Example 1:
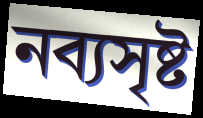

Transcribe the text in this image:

নব্যসৃষ্ট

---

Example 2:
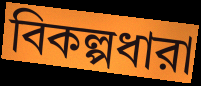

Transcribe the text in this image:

বিকল্পধারা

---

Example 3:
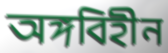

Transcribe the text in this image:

অঙ্গবিহীন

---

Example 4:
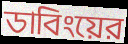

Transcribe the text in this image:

ডাবিংয়ের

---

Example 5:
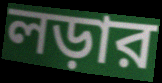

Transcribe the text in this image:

লড়ার